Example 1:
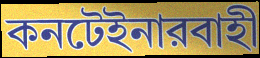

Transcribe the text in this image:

কনটেইনারবাহী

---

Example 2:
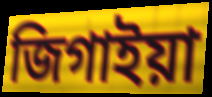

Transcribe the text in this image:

জিগাইয়া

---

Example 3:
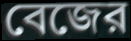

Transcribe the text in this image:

বেজের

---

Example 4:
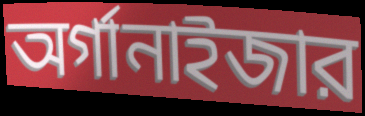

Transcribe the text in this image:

অর্গানাইজার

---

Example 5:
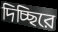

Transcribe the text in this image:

দিচ্ছিরে